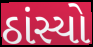
ઠાંસ્યો